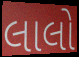
લાલો